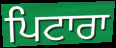
ਪਿਟਾਰਾ